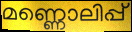
മണ്ണൊലിപ്പ്